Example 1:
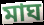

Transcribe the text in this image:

মাঘ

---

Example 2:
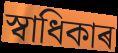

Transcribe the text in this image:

স্বাধিকাৰ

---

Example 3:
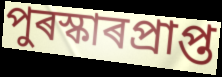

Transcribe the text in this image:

পুৰস্কাৰপ্ৰাপ্ত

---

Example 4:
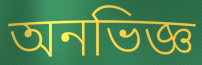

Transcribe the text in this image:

অনভিজ্ঞ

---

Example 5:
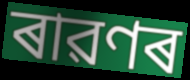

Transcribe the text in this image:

ৰাৱণৰ